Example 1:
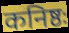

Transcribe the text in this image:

कनिष्ठः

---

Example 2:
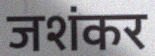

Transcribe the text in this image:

जशंकर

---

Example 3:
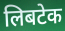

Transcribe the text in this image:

लिबटेक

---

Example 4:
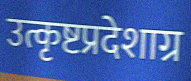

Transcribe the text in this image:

उत्कृष्टप्रदेशाग्र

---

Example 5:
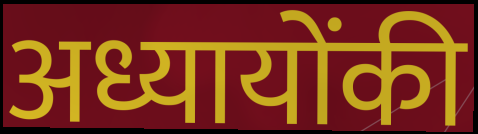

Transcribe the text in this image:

अध्यायोंकी